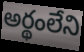
అర్థంలేని